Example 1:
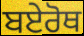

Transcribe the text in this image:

ਬਏਰੋਥ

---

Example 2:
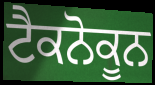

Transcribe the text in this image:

ਟੈਕਨੋਕੂਨ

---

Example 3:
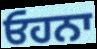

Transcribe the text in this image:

ਓਹਨਾ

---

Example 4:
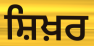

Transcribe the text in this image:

ਸ਼ਿਖ਼ਰ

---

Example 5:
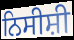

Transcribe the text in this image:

ਨਿਸੀਸ਼ੀ